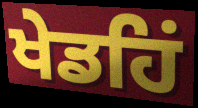
ਖੇਡਹਿਂ